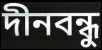
দীনবন্ধু